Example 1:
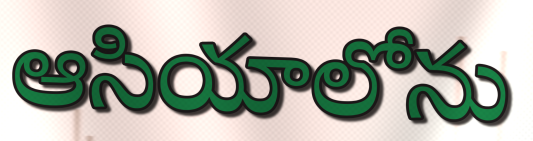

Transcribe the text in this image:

ఆసియాలోను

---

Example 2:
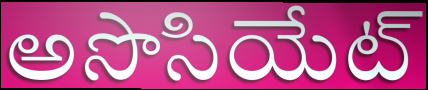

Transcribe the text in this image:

అసొసియేట్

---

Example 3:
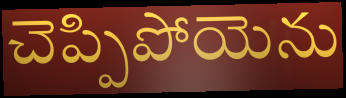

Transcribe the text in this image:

చెప్పిపోయెను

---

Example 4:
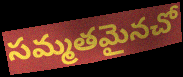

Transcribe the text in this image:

సమ్మతమైనచో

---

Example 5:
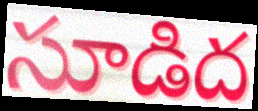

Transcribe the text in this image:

సూడిద